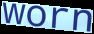
worn